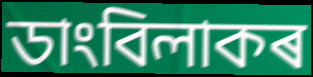
ডাংবিলাকৰ